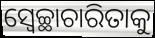
ସ୍ଵେଚ୍ଛାଚାରିତାକୁ